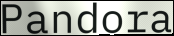
Pandora